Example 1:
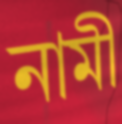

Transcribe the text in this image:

নামী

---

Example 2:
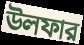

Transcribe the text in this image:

উলফার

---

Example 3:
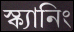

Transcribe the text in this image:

স্ক্যানিং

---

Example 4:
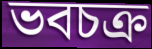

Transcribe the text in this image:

ভবচক্র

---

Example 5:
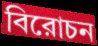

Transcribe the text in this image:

বিরোচন